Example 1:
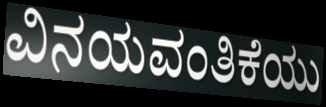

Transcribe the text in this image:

ವಿನಯವಂತಿಕೆಯು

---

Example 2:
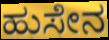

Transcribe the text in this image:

ಹುಸೇನ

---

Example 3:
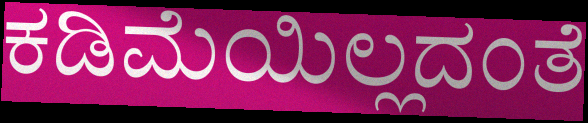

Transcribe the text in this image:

ಕಡಿಮೆಯಿಲ್ಲದಂತೆ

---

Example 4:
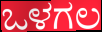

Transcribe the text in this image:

ಒಳಗಲ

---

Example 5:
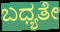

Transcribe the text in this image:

ಬಧ್ಯತೇ